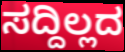
ಸದ್ದಿಲ್ಲದ